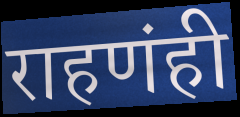
राहणंही